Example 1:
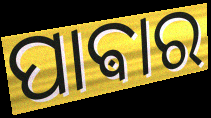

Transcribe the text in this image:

ପାଵାର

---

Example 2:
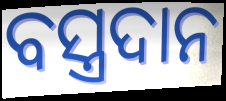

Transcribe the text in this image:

ବସ୍ତ୍ରଦାନ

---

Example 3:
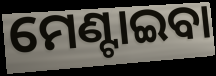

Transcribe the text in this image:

ମେଣ୍ଟାଇବା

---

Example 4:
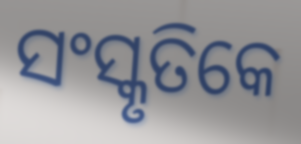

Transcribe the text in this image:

ସଂସ୍କୃତିକେ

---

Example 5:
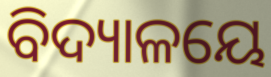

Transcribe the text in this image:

ବିଦ୍ୟାଳୟେ